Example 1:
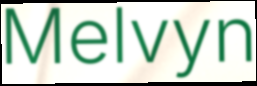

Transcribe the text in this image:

Melvyn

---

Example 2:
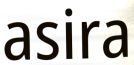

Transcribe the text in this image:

asira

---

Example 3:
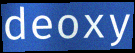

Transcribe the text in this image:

deoxy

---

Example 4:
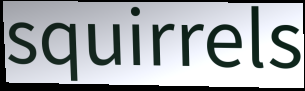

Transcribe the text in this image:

squirrels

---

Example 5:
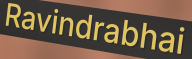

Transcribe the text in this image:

Ravindrabhai